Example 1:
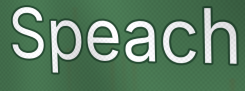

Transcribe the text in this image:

Speach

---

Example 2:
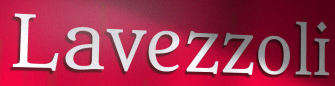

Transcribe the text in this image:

Lavezzoli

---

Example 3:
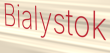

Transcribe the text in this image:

Bialystok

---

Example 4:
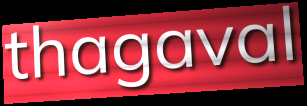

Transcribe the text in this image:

thagaval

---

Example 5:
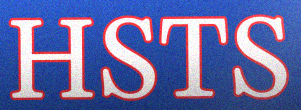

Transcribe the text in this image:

HSTS